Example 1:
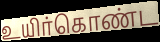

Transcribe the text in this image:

உயிர்கொண்ட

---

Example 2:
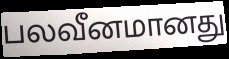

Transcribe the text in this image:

பலவீனமானது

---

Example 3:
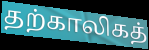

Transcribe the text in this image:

தற்காலிகத்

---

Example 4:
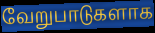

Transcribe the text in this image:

வேறுபாடுகளாக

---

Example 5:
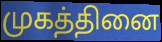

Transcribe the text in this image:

முகத்தினை